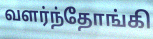
வளர்ந்தோங்கி